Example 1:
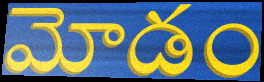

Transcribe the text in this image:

మోడం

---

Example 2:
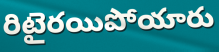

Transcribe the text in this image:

రిటైరయిపోయారు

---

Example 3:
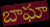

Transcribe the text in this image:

బాఘా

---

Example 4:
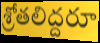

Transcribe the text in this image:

శ్రోతలిద్దరూ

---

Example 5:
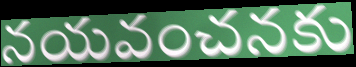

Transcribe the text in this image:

నయవంచనకు